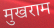
मुखराम